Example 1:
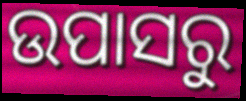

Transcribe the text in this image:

ଉପାସରୁ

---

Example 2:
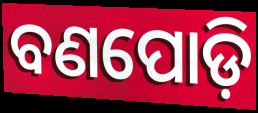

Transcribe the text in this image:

ବଣପୋଡ଼ି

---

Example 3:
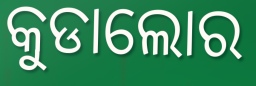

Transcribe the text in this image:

କୁଡାଲୋର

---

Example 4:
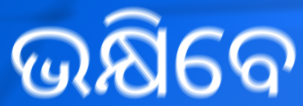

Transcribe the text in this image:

ଭକ୍ଷିବେ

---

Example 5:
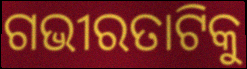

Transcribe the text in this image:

ଗଭୀରତାଟିକୁ